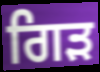
ਗਿੜ